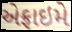
એફ્રાઇમે